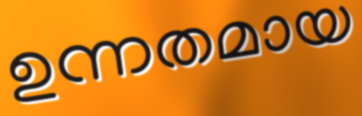
ഉന്നതമായ